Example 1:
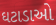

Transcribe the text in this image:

ઘટાડાઓ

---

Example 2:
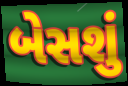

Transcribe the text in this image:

બેસશું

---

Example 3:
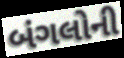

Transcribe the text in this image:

બંગલોની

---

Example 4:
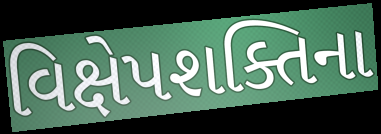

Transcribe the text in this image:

વિક્ષેપશક્તિના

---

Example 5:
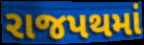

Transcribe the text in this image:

રાજપથમાં